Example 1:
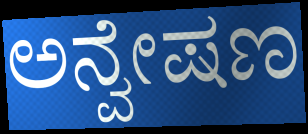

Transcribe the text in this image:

ಅನ್ವೇಷಣ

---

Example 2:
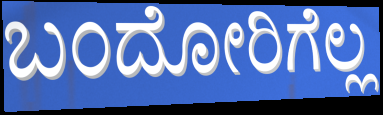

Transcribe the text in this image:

ಬಂದೋರಿಗೆಲ್ಲ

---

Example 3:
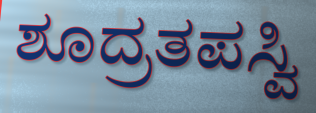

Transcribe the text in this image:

ಶೂದ್ರತಪಸ್ವಿ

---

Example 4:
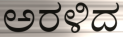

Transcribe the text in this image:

ಅರಳಿದ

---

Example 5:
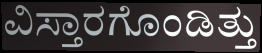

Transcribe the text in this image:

ವಿಸ್ತಾರಗೊಂಡಿತ್ತು